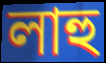
লাহু